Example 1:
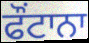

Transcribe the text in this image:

ਫੌਂਟਾਨਾ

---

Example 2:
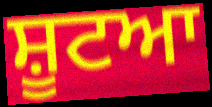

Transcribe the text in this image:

ਸ਼ੂਟਆ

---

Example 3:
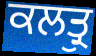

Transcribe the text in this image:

ਕਲਤ੍ਰੁ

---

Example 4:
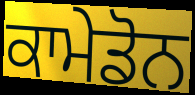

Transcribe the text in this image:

ਕਾਮੇਡੋਨ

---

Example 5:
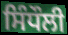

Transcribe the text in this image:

ਸਿੰਧੌਲੀ